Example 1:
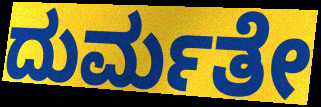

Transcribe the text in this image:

ದುರ್ಮತೇ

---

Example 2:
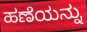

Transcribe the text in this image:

ಹಣೆಯನ್ನು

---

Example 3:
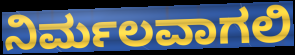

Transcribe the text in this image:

ನಿರ್ಮಲವಾಗಲಿ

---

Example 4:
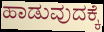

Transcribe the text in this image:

ಹಾಡುವುದಕ್ಕೆ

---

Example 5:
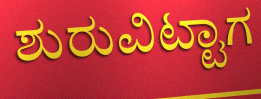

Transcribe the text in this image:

ಶುರುವಿಟ್ಟಾಗ